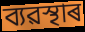
ব্যৱস্থাৰ